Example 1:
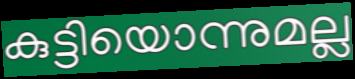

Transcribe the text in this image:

കുട്ടിയൊന്നുമല്ല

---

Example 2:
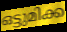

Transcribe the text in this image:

ഒട്ടുമിക്ക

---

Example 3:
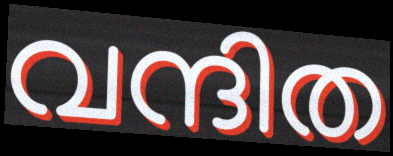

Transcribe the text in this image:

വന്ദിത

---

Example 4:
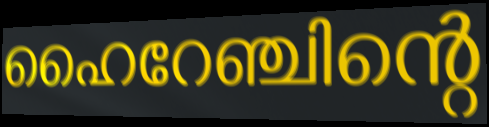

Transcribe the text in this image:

ഹൈറേഞ്ചിന്റെ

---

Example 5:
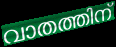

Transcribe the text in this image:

വാതത്തിന്